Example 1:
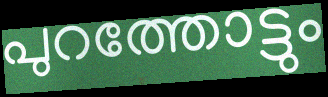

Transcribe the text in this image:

പുറത്തോട്ടും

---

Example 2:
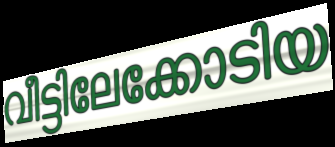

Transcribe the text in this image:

വീട്ടിലേക്കോടിയ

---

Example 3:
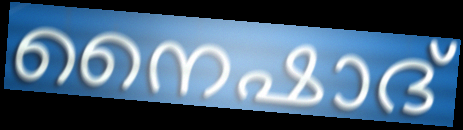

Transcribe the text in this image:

നൈഷാദ്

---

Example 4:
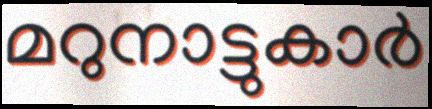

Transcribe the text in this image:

മറുനാട്ടുകാർ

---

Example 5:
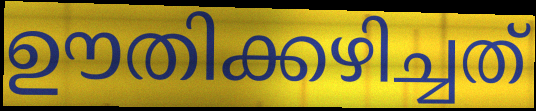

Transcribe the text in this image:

ഊതിക്കഴിച്ചത്